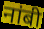
नांबी